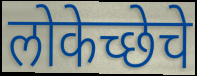
लोकेच्छेचे